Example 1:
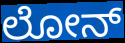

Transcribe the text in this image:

ಲೋನ್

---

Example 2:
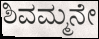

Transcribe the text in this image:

ಶಿವಮ್ಮನೇ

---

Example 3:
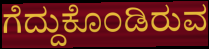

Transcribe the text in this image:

ಗೆದ್ದುಕೊಂಡಿರುವ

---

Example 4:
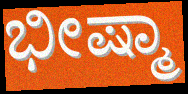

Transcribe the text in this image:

ಭೀಷ್ಮಾ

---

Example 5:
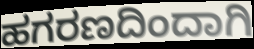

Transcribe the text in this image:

ಹಗರಣದಿಂದಾಗಿ